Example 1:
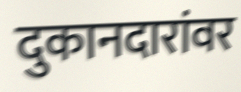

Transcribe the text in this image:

दुकानदारांवर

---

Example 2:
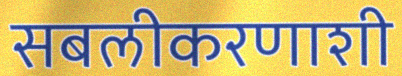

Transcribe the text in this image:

सबलीकरणाशी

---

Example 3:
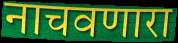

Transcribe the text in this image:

नाचवणारा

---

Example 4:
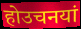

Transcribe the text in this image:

होउचनयां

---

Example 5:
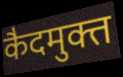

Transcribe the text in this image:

कैदमुक्त